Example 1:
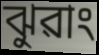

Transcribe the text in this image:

ঝুৱাং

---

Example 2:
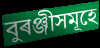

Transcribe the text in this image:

বুৰঞ্জীসমূহে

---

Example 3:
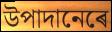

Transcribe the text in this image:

উপাদানেৰে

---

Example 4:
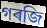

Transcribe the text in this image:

গৰজি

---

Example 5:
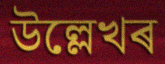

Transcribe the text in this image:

উল্লেখৰ